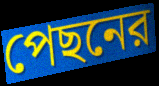
পেছনের